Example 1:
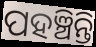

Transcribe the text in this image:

ପହଞ୍ଚିନ୍ତି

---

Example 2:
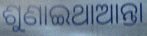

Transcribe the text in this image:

ଶୁଣାଇଥାଆନ୍ତା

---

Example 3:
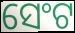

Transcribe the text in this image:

ସେଂଟ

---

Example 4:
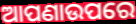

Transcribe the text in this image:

ଆପଣାଉପରେ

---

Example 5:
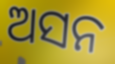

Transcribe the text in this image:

ଅସନ